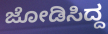
ಜೋಡಿಸಿದ್ದ